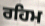
ਰਹਿਮ